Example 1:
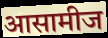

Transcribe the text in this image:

आसामीज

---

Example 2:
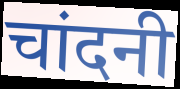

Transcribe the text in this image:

चांदनी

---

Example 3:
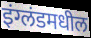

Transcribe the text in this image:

इंग्लंडमधील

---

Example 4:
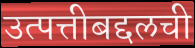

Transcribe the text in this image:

उत्पत्तीबद्दलची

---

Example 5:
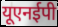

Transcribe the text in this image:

यूएनईपी